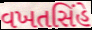
વખતસિંહે